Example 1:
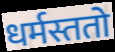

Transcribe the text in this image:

धर्मस्ततो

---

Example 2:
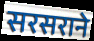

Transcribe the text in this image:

सरसराने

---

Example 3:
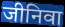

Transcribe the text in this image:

जीनिवा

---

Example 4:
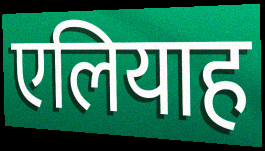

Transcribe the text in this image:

एलियाह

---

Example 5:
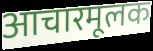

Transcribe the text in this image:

आचारमूलक